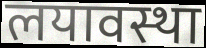
लयावस्था